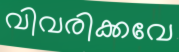
വിവരിക്കവേ